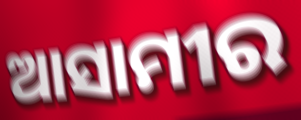
ଆସାମୀର